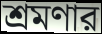
শ্রমণার